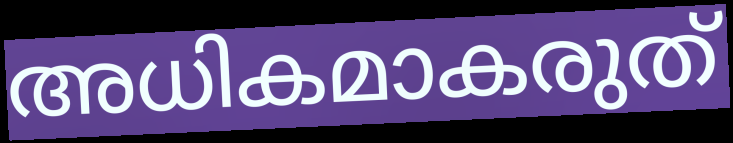
അധികമാകരുത്